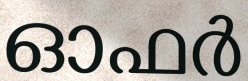
ഓഫർ